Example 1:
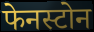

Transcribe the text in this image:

फेनस्टोन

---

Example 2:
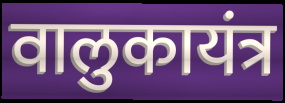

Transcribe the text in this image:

वालुकायंत्र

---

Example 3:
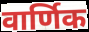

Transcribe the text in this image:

वार्णिक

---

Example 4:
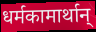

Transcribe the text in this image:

धर्मकामार्थान्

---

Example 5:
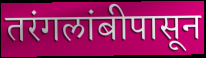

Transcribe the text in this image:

तरंगलांबीपासून